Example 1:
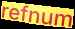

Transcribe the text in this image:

refnum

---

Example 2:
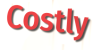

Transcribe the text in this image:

Costly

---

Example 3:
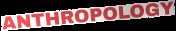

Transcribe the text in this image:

ANTHROPOLOGY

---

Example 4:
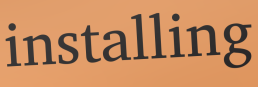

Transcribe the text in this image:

installing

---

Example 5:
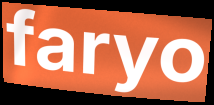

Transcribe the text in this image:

faryo